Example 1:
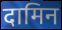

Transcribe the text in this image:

दामिन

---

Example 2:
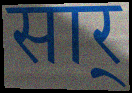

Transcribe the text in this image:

सार्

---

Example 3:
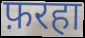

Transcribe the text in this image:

फ़रहा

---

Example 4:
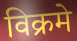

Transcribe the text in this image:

विक्रमे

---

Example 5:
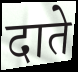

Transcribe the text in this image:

दाते